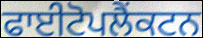
ਫਾਈਟੋਪਲੈਂਕਟਨ